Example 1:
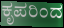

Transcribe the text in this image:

ಕೃಪರಿಂದ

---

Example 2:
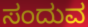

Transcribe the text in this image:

ಸಂದುವ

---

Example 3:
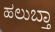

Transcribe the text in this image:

ಹಲುಬ್ತಾ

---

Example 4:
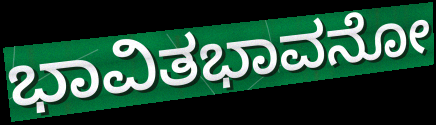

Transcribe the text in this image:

ಭಾವಿತಭಾವನೋ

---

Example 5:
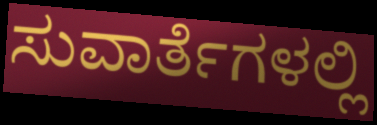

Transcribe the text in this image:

ಸುವಾರ್ತೆಗಳಲ್ಲಿ